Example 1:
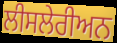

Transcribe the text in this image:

ਲੀਸਲੇਰੀਅਨ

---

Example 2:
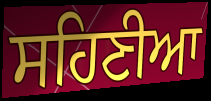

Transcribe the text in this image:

ਸਹਿਣੀਆ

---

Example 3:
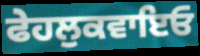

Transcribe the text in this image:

ਫੇਹਲੁਕਵਾਇਓ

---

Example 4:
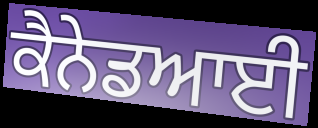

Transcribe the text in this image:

ਕੈਨੇਡਆਈ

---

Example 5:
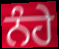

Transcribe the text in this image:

ਨੰਹੇ